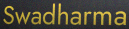
Swadharma